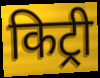
किट्री